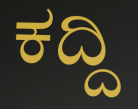
ಕದ್ದಿ